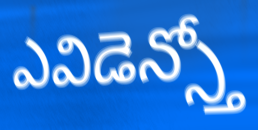
ఎవిడెన్స్తో